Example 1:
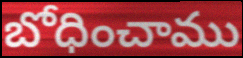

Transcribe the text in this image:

బోధించాము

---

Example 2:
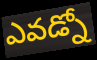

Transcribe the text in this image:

ఎవడ్నో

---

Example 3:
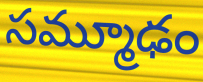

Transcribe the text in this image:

సమ్మూఢం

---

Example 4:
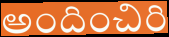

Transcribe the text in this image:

అందించిరి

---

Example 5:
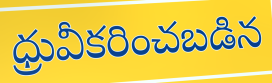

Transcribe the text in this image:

ధ్రువీకరించబడిన